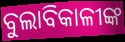
ବୁଲାବିକାଳୀଙ୍କ